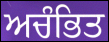
ਅਚੰਭਿਤ